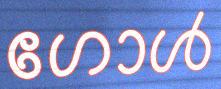
ഗോൾ